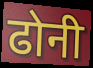
ढोनी